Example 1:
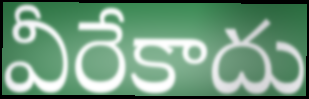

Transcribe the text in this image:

వీరేకాదు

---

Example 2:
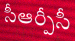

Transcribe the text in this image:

సీఆర్పీసీ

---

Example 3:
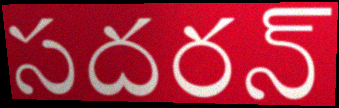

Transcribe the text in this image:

సదరన్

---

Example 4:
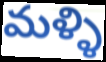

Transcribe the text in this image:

మళ్ళి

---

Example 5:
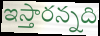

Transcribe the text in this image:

ఇస్తారన్నది